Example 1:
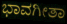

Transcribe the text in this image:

ಭಾವಗೀತಾ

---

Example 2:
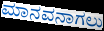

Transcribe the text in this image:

ಮಾನವನಾಗಲು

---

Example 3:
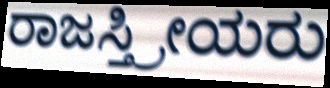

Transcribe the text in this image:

ರಾಜಸ್ತ್ರೀಯರು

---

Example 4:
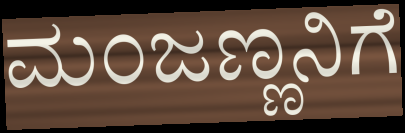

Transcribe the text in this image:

ಮಂಜಣ್ಣನಿಗೆ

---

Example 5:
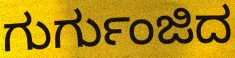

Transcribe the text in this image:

ಗುರ್ಗುಂಜಿದ